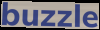
buzzle